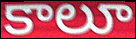
కాలూ